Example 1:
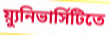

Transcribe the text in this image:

য়্যুনিভার্সিটিতে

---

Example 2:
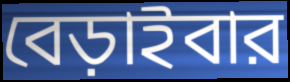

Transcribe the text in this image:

বেড়াইবার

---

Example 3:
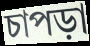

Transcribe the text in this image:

চাপড়া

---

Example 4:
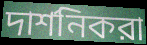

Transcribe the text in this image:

দার্শনিকরা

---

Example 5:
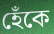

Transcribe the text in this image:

হেঁকে